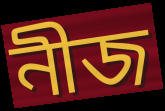
নীজ